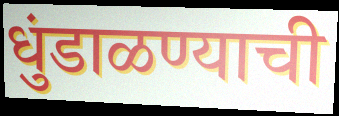
धुंडाळण्याची